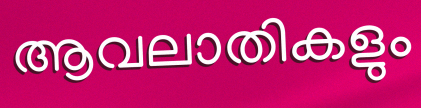
ആവലാതികളും